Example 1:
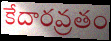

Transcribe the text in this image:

కేదారవ్రతం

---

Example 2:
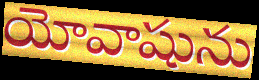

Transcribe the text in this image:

యోవాషును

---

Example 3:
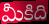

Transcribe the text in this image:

మీకిది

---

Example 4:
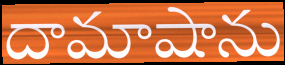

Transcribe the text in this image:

దామాషాను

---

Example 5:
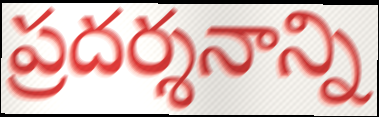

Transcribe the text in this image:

ప్రదర్శనాన్ని